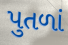
પુતળાં